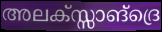
അലക്സ്സാങ്ദ്രെ